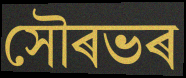
সৌৰভৰ